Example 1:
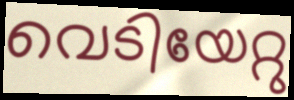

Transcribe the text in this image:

വെടിയേറ്റു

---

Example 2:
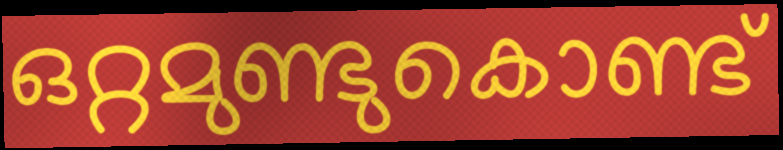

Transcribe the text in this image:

ഒറ്റമുണ്ടുകൊണ്ട്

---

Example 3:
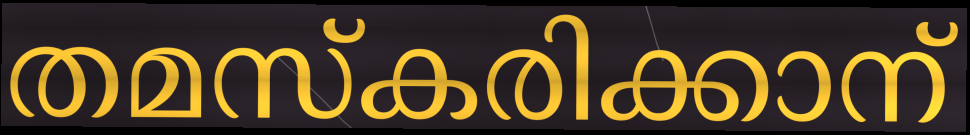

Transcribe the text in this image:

തമസ്കരിക്കാന്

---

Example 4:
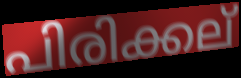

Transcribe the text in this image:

പിരിക്കല്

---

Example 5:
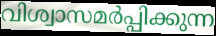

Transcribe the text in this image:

വിശ്വാസമർപ്പിക്കുന്ന